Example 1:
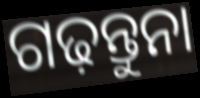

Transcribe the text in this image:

ଗଢ଼ନ୍ତୁନା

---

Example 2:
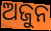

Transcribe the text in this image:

ଅଜୁନ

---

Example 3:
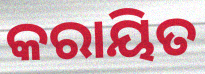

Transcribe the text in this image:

କରାୟିତ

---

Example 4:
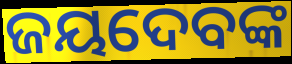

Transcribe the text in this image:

ଜୟଦେବଙ୍କ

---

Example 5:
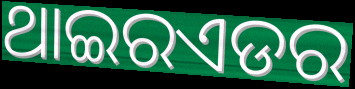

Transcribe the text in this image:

ଥାଇରଏଡର